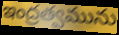
ఇంద్రత్వమును